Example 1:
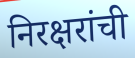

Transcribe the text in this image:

निरक्षरांची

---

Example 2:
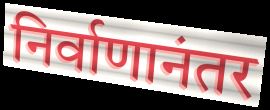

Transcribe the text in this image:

निर्वाणानंतर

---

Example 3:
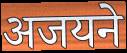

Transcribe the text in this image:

अजयने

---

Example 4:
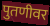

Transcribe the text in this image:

पुतणीवर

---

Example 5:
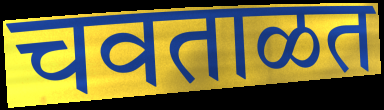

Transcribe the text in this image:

चवताळत